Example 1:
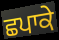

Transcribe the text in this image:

ਛਪਾਕੇ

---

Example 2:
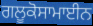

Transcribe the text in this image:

ਗਲੂਕੋਸਾਮਾਈਨ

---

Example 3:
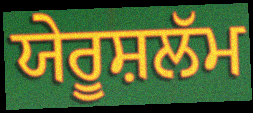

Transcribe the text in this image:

ਯੇਰੂਸ਼ਲੱਮ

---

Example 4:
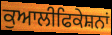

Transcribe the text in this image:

ਕੁਆਲੀਫਿਕੇਸ਼ਨਾਂ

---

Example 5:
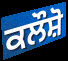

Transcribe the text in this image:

ਕਲੌਸ਼ੋ